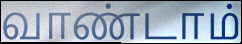
வாண்டாம்